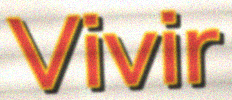
Vivir